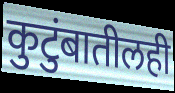
कुटुंबातीलही